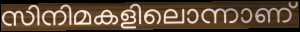
സിനിമകളിലൊന്നാണ്